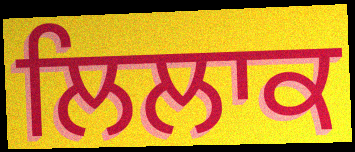
ਲਿਲਾਕ